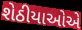
શેઠીયાઓએ